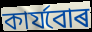
কাৰ্যবোৰ